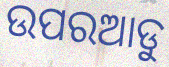
ଉପରଆଡୁ